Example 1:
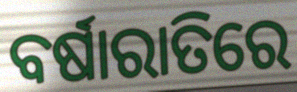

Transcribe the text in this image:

ବର୍ଷାରାତିରେ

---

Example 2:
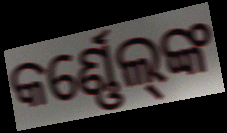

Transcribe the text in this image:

କର୍ଣ୍ଣେଲ୍‌ଙ୍କ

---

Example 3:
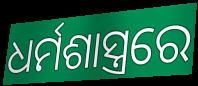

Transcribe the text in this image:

ଧର୍ମଶାସ୍ତ୍ରରେ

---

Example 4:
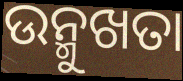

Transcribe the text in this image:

ଉନ୍ମୁଖତା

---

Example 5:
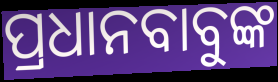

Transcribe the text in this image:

ପ୍ରଧାନବାବୁଙ୍କ